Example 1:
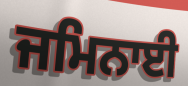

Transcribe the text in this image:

ਜਮਿਨਾਈ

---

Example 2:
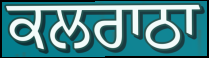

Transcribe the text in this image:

ਕਲਰਾਠਾ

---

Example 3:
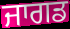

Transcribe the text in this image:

ਜਾਗਡ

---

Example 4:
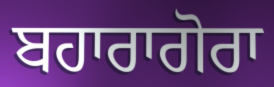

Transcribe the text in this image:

ਬਹਾਰਾਗੋਰਾ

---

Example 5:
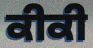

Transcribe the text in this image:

ਕੀਕੀ